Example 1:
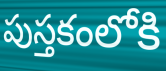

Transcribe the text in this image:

పుస్తకంలోకి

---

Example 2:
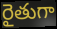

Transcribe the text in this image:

రైతుగా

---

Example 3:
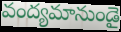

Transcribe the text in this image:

వంద్యమానుండై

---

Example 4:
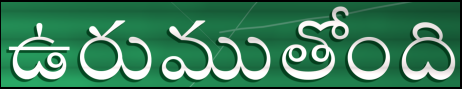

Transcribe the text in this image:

ఉరుముతోంది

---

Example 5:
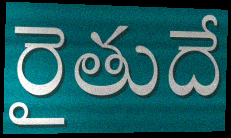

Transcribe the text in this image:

రైతుదే